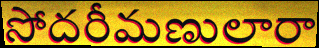
సోదరీమణులారా